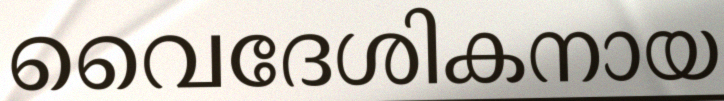
വൈദേശികനായ